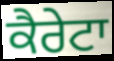
ਕੈਰੇਟਾ